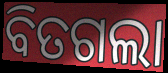
ବିତଗଲା